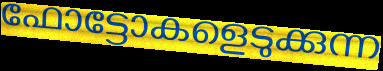
ഫോട്ടോകളെടുക്കുന്ന